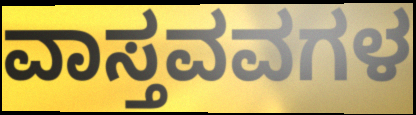
ವಾಸ್ತವವಗಳ